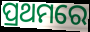
ପ୍ରଥମରେ